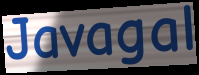
Javagal